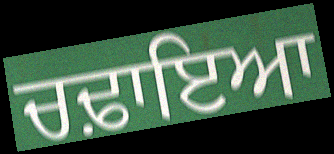
ਚਢ਼ਾਇਆ